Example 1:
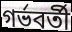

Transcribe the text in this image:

গর্ভবর্তী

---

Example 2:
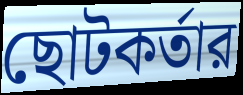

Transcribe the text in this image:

ছোটকর্তার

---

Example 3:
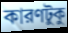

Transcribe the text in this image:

কারণটুকু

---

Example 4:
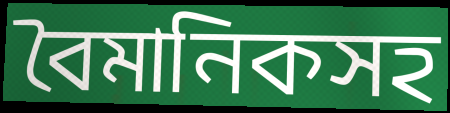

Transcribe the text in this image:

বৈমানিকসহ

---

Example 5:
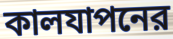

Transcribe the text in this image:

কালযাপনের